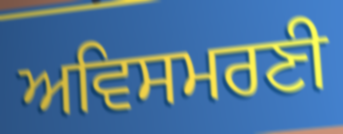
ਅਵਿਸਮਰਣੀ